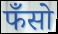
फँसो